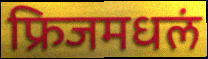
फ्रिजमधलं